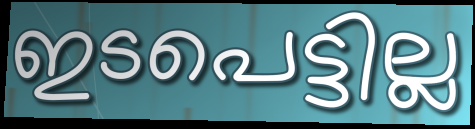
ഇടപെട്ടില്ല